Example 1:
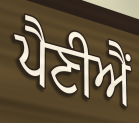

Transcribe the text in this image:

ਪੈਣੀਐਂ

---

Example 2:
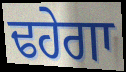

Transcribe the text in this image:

ਢਹੇਗਾ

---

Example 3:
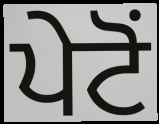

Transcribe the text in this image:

ਪੇਟੋਂ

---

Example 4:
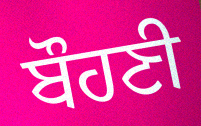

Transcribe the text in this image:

ਬੌਹਣੀ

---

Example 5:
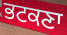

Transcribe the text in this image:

ਭਟਕਣਾ